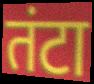
तंटा